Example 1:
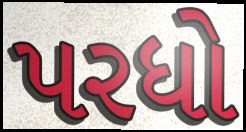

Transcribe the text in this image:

પરધો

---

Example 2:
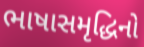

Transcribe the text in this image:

ભાષાસમૃદ્ધિનો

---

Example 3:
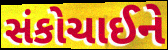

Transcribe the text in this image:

સંકોચાઈને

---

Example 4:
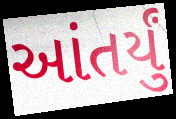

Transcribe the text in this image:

આંતર્યું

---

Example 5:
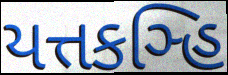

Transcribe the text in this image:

યત્તકઞ્હિ